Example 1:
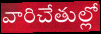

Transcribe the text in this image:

వారిచేతుల్లో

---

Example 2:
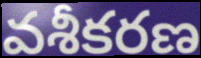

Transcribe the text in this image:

వశీకరణ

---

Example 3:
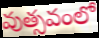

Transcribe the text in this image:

వుత్సవంలో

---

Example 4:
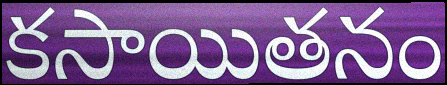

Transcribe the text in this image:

కసాయితనం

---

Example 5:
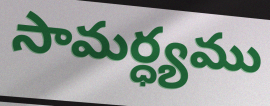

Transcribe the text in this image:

సామర్ధ్యము